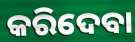
କରିଦେବା